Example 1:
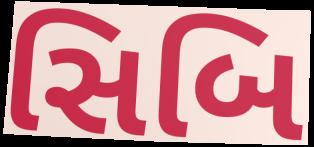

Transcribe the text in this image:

સિબિ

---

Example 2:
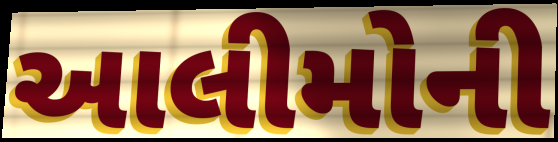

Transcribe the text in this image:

આલીમોની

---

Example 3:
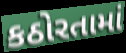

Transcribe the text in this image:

કઠોરતામાં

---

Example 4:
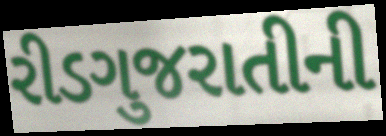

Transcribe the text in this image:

રીડગુજરાતીની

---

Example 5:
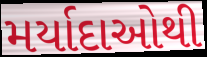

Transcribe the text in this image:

મર્યાદાઓથી